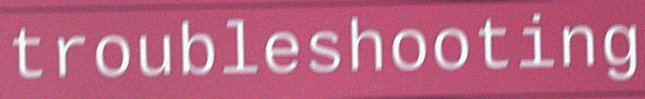
troubleshooting